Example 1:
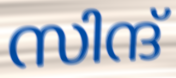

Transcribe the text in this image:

സിന്ദ്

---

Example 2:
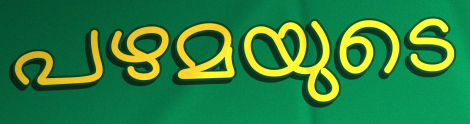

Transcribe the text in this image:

പഴമയുടെ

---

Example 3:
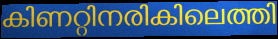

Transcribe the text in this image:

കിണറ്റിനരികിലെത്തി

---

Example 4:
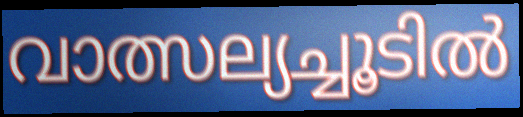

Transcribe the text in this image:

വാത്സല്യച്ചൂടിൽ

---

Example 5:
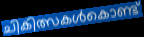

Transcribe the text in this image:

ചികിത്സകൾകൊണ്ട്